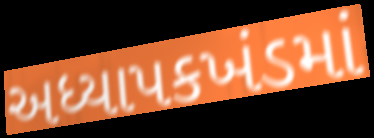
અધ્યાપકખંડમાં